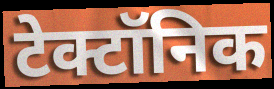
टेक्टॉनिक